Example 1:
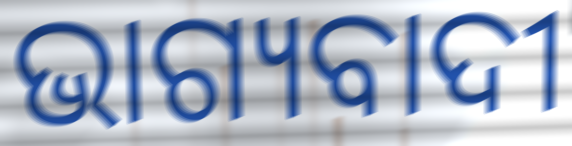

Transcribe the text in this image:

ଭାଗ୍ୟବାଦୀ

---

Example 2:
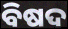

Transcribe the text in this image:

ବିଷଦ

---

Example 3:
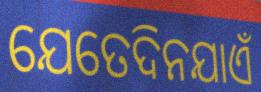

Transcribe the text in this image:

ଯେତେଦିନଯାଏଁ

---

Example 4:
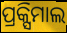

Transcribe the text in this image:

ପ୍ରକ୍ସିମାଲ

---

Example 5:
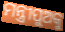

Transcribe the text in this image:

ମନ୍ତ୍ରୀପୁଅକୁ